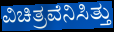
ವಿಚಿತ್ರವೆನಿಸಿತ್ತು